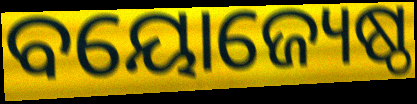
ବୟୋଜ୍ୟେଷ୍ଠ